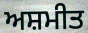
ਅਸ਼ਮੀਤ